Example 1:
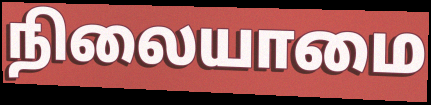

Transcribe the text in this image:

நிலையாமை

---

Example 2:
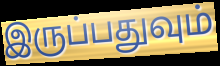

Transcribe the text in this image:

இருப்பதுவும்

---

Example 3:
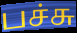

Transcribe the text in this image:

பச்சு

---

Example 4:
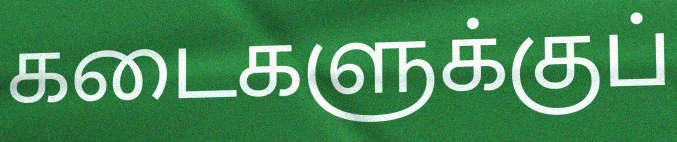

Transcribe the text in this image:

கடைகளுக்குப்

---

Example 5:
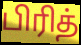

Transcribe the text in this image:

பிரித்